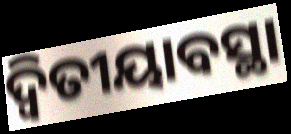
ଦ୍ବିତୀୟାବସ୍ଥା